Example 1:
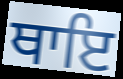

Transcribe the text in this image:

ਥਾਇ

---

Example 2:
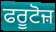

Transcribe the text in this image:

ਫਰੂਟੋਜ਼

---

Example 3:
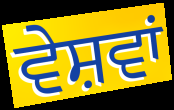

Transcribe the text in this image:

ਵੇਸ਼ਵਾਂ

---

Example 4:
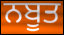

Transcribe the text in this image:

ਨਬੂਤ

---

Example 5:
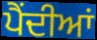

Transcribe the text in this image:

ਪੈਂਦੀਆਂ